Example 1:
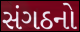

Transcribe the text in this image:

સંગઠનો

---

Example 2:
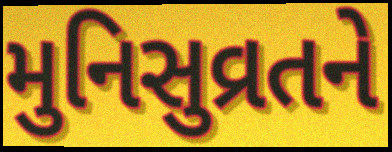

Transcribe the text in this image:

મુનિસુવ્રતને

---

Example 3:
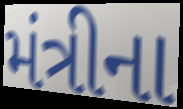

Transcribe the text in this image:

મંત્રીના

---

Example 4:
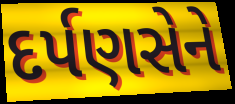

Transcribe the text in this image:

દર્પણસેને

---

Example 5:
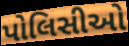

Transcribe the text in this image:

પોલિસીઓ